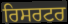
ਰਿਸਰਟਰ